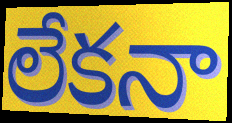
లేకనా